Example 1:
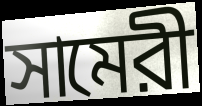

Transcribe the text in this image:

সামেরী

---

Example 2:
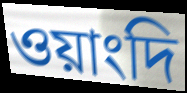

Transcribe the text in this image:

ওয়াংদি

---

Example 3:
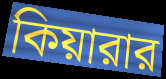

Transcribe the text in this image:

কিয়ারার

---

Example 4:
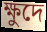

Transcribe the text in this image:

ক্ষুদে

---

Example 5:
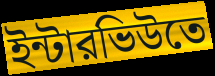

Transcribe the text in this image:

ইন্টারভিউতে